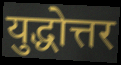
युद्धोत्तर